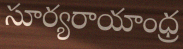
సూర్యరాయాంధ్ర